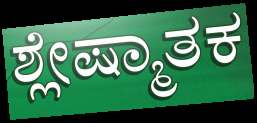
ಶ್ಲೇಷ್ಮಾತಕ